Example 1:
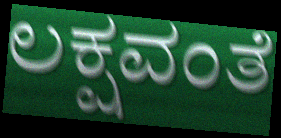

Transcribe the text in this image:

ಲಕ್ಷವಂತೆ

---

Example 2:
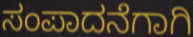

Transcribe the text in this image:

ಸಂಪಾದನೆಗಾಗಿ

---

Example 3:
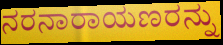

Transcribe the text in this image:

ನರನಾರಾಯಣರನ್ನು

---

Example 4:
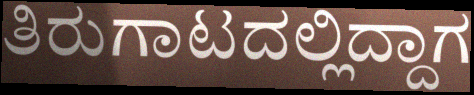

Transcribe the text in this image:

ತಿರುಗಾಟದಲ್ಲಿದ್ದಾಗ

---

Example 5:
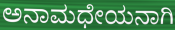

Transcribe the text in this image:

ಅನಾಮಧೇಯನಾಗಿ